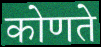
कोणते